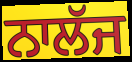
ਨਾਲੱਜ